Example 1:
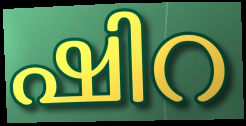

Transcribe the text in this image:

ഷിറ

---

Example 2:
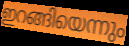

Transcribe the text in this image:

ഇറങ്ങിയെന്നും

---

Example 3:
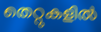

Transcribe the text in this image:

തെറ്റുകളിൽ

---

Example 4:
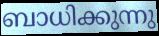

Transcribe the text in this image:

ബാധിക്കുന്നു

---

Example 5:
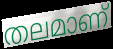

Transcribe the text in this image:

തലമാണ്